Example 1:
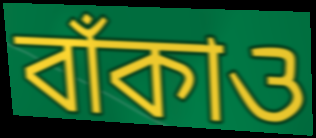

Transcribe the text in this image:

বাঁকাও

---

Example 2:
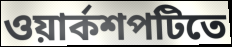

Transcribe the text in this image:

ওয়ার্কশপটিতে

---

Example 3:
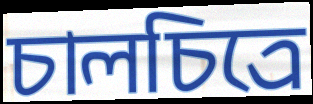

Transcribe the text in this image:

চালচিত্রে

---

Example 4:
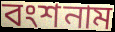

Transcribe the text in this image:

বংশনাম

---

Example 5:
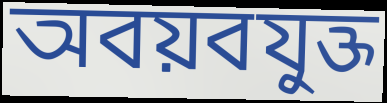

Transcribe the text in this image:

অবয়বযুক্ত